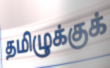
தமிழுக்குக்